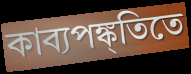
কাব্যপঙ্ক্তিতে